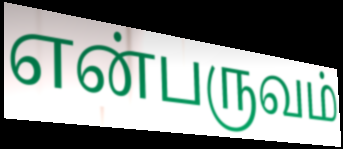
என்பருவம்